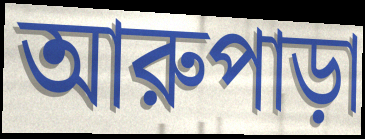
আরুপাড়া